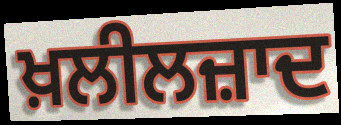
ਖ਼ਲੀਲਜ਼ਾਦ